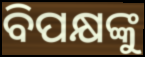
ବିପକ୍ଷଙ୍କୁ